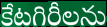
కేటగిరీలను